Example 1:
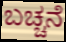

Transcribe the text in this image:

ಬಚ್ಚನೆ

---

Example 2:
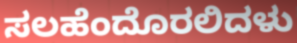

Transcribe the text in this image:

ಸಲಹೆಂದೊರಲಿದಳು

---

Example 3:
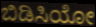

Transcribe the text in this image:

ಬಿಡಿಸಿಯೋ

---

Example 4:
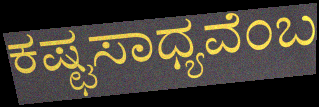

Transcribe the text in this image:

ಕಷ್ಟಸಾಧ್ಯವೆಂಬ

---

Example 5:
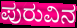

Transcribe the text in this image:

ಪುರುವಿನ